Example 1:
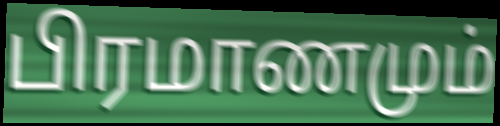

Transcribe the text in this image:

பிரமாணமும்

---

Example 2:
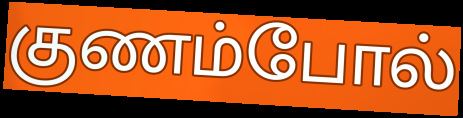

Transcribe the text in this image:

குணம்போல்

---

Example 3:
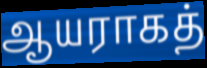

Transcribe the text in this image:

ஆயராகத்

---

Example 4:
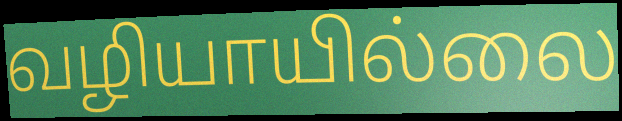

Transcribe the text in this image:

வழியாயில்லை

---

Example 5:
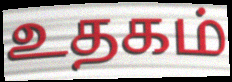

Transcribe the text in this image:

உதகம்